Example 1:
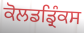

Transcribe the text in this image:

ਕੋਲਡਡ੍ਰਿੰਕਸ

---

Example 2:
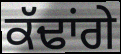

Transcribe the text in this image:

ਕੱਢਾਂਗੇ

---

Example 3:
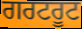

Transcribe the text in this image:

ਗਰਟਰੂਟ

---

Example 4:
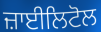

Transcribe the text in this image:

ਜ਼ਾਈਲਿਟੋਲ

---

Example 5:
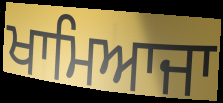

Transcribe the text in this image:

ਖਾਮਿਆਜਾ